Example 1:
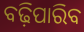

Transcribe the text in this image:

ବଢ଼ିପାରିବ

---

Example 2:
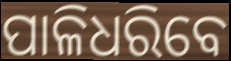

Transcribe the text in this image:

ପାଳିଧରିବେ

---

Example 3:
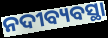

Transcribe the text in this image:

ନଦୀବ୍ୟବସ୍ଥା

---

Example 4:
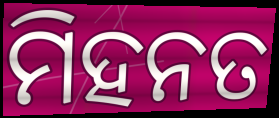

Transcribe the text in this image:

ମିହନତ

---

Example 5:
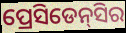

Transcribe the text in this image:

ପ୍ରେସିଡେନ୍‌ସିର